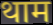
थाम